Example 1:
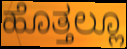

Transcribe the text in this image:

ಹೊತ್ತಲ್ಲೂ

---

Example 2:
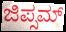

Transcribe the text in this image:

ಜಿಪ್ಸಮ್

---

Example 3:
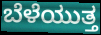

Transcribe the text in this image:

ಬೆಳೆಯುತ್ತ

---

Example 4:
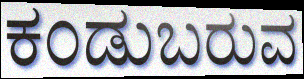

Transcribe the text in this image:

ಕಂಡುಬರುವ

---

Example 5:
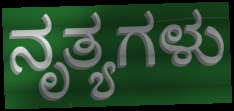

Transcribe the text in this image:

ನೃತ್ಯಗಳು